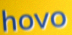
hovo